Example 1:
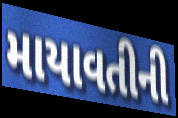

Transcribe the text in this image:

માયાવતીની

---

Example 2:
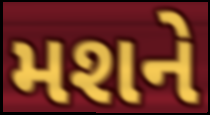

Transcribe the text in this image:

મશને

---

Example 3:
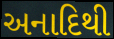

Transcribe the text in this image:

અનાદિથી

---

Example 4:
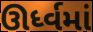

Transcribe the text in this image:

ઊર્ધ્વમાં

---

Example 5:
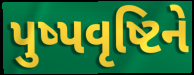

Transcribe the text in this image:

પુષ્પવૃષ્ટિને